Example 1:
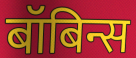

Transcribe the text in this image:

बॉबिन्स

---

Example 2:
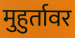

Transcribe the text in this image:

मुहुर्तावर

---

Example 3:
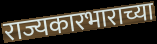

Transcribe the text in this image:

राज्यकारभाराच्या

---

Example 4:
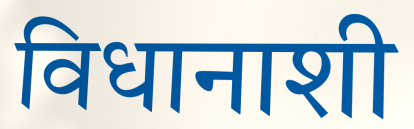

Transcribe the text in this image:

विधानाशी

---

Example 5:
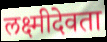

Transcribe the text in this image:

लक्ष्मीदेवता